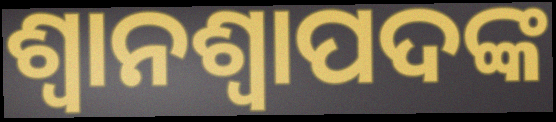
ଶ୍ୱାନଶ୍ୱାପଦଙ୍କ